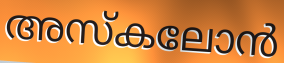
അസ്കലോൻ